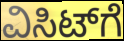
ವಿಸಿಟ್‌ಗೆ